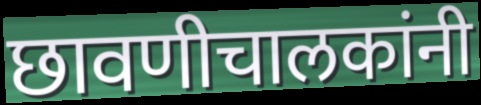
छावणीचालकांनी